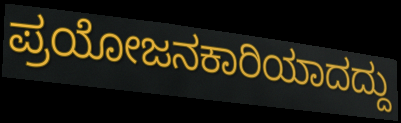
ಪ್ರಯೋಜನಕಾರಿಯಾದದ್ದು